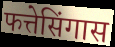
फत्तेसिंगास